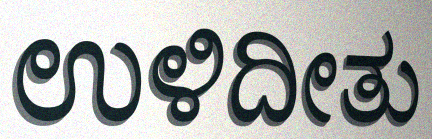
ಉಳಿದೀತು